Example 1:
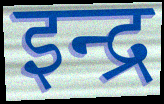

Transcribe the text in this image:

इन्द्र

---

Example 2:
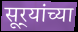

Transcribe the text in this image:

सूर्यांच्या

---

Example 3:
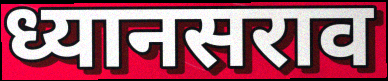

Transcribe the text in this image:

ध्यानसराव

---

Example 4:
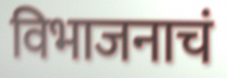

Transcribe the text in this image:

विभाजनाचं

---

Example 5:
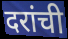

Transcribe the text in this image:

दरांची